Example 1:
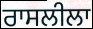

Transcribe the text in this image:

ਰਾਸਲੀਲਾ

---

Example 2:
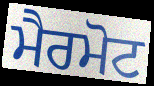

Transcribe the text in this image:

ਮੈਰਮੋਟ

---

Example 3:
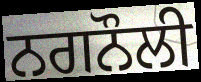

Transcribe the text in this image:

ਨਗਨੌਲੀ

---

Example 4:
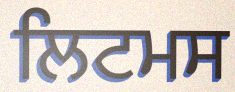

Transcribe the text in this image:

ਲਿਟਮਸ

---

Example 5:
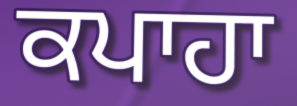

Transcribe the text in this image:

ਕਪਾਹਾ